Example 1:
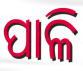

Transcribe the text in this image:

ପାଳି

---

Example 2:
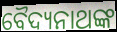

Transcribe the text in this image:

ବୈଦ୍ୟନାଥଙ୍କ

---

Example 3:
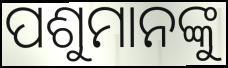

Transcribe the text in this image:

ପଶୁମାନଙ୍କୁ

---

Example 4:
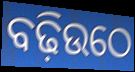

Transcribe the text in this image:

ବଢ଼ିଉଠେ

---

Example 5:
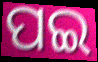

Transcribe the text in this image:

ପଇ